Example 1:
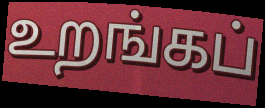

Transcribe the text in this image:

உறங்கப்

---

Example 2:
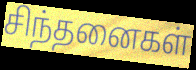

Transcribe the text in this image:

சிந்தனைகள்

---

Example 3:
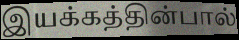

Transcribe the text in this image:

இயக்கத்தின்பால்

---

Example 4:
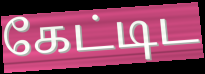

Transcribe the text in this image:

கேட்டிட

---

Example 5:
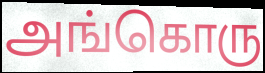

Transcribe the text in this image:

அங்கொரு